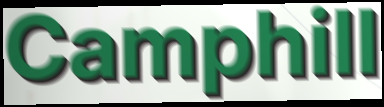
Camphill